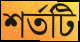
শর্তটি